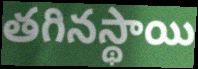
తగినస్థాయి